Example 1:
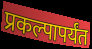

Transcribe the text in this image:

प्रकल्पापर्यंत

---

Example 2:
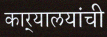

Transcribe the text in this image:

कार्यालयांची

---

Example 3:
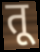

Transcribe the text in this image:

तू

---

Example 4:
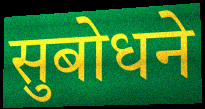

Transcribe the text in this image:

सुबोधने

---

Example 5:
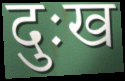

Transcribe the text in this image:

दुःख